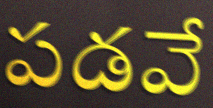
పడవే